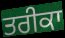
ਤਰੀਕਾ